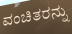
ವಂಚಿತರನ್ನು